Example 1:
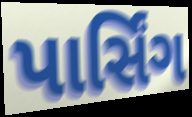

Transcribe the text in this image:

પાર્સિંગ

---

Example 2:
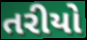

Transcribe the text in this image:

તરીયો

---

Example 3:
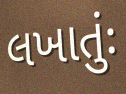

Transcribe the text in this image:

લખાતુંઃ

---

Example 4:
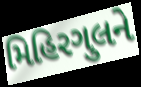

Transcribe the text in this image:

મિહિરગુલને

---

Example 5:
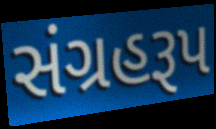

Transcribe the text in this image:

સંગ્રહરૂપ